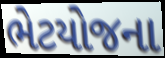
ભેટયોજના